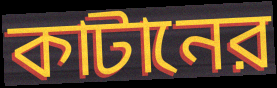
কাটানের